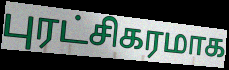
புரட்சிகரமாக